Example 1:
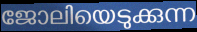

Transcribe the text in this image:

ജോലിയെടുക്കുന്ന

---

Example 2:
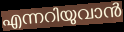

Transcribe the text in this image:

എന്നറിയുവാൻ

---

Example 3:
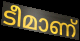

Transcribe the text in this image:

ടീമാണ്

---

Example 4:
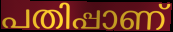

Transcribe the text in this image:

പതിപ്പാണ്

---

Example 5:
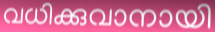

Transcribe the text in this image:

വധിക്കുവാനായി